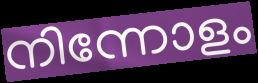
നിന്നോളം